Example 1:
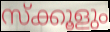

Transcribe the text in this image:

സ്ക്കൂളും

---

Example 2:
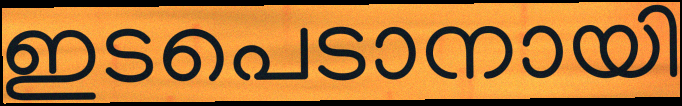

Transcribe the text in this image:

ഇടപെടാനായി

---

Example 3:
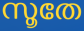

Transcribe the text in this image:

സൂതേ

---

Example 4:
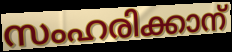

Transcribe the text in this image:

സംഹരിക്കാന്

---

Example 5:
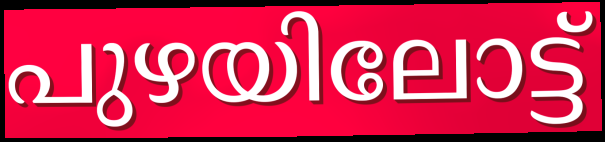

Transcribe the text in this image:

പുഴയിലോട്ട്